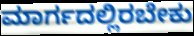
ಮಾರ್ಗದಲ್ಲಿರಬೇಕು